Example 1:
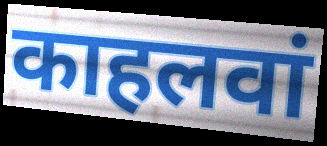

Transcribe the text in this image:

काहलवां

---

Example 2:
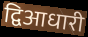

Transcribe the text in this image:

द्विआधारी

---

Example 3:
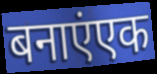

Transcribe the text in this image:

बनाएंएक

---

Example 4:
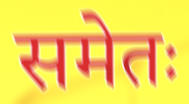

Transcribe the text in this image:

समेतः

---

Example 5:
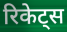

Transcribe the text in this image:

रिकेट्स